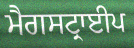
ਮੈਗਸਟ੍ਰਾਈਪ